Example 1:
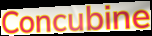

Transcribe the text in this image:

Concubine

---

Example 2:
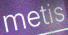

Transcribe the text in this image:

metis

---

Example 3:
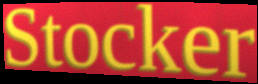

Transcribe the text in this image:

Stocker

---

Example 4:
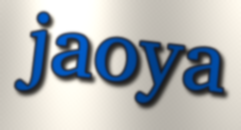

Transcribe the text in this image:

jaoya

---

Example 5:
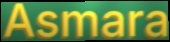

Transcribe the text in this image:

Asmara